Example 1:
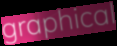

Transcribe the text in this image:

graphical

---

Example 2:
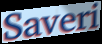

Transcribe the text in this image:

Saveri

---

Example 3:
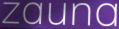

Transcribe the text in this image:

zauna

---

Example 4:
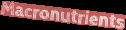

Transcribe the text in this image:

Macronutrients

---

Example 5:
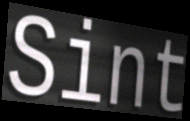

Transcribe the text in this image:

Sint